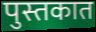
पुस्तकात